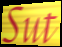
Sut